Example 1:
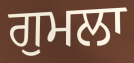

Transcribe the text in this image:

ਗੁਮਲਾ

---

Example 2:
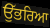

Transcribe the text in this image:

ਉੱਭਰਿਆ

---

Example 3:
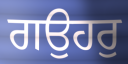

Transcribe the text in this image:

ਗਉਹਰੁ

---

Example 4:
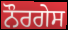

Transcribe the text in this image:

ਨੌਰਗੇਸ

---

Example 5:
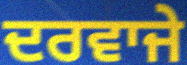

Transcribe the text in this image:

ਦਰਵਾਜੇ